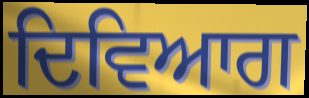
ਦਿਵਿਆਗ